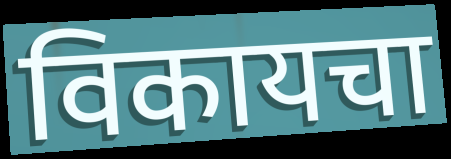
विकायचा